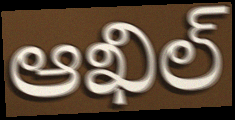
ఆఖిల్